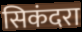
सिकंदरा